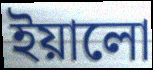
ইয়ালো